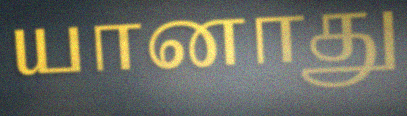
யானாது